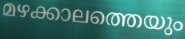
മഴക്കാലത്തെയും